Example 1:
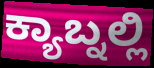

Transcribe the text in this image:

ಕ್ಯಾಬ್ನಲ್ಲಿ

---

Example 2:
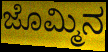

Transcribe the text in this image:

ಜೊಮ್ಮಿನ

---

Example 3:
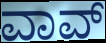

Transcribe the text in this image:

ವಾವ್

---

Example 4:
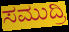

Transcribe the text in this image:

ಸಮುದ್ರಿ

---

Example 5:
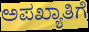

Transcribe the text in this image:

ಅಪಖ್ಯಾತಿಗೆ